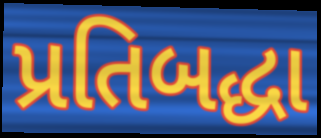
પ્રતિબદ્ધા